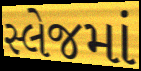
સ્લેજમાં